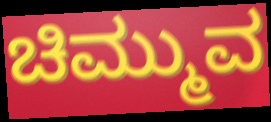
ಚಿಮ್ಮುವ